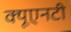
क्यूएनटी